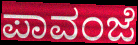
ಪಾವಂಜೆ